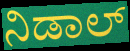
ನಿಡಾಲ್